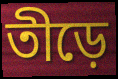
তীড়ে